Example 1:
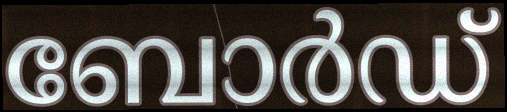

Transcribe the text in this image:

ബോർഡ്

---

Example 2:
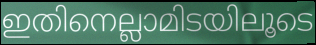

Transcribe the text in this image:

ഇതിനെല്ലാമിടയിലൂടെ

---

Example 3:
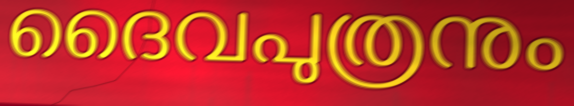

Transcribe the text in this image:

ദൈവപുത്രനും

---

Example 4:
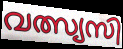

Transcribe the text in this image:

വത്സ്യസി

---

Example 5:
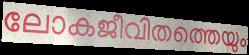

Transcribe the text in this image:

ലോകജീവിതത്തെയും